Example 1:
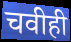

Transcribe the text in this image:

चवीही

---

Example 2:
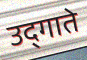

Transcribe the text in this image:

उद्‌गाते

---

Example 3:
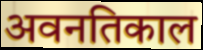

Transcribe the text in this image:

अवनतिकाल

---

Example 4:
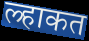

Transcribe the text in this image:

ल्हाकत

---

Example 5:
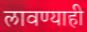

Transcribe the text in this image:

लावण्याही